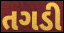
તગડી